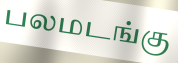
பலமடங்கு